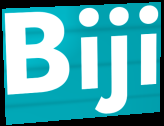
Biji